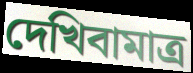
দেখিবামাত্র